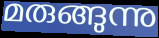
മരുങ്ങുന്നു